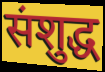
संशुद्ध